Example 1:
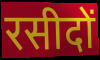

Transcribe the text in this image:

रसीदों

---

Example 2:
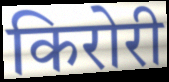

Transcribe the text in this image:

किरोरी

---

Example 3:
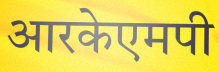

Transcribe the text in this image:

आरकेएमपी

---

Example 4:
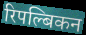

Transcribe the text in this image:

रिपल्बिकन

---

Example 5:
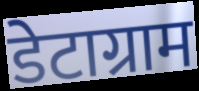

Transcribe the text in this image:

डेटाग्राम